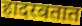
हादरवतात